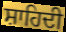
ਸ਼ਾਹਿਦੀ